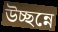
উচ্ছন্নে